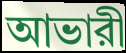
আভারী